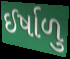
ઈર્ષાળુ